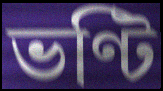
ভণ্টি